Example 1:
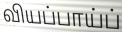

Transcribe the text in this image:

வியப்பாய்ப்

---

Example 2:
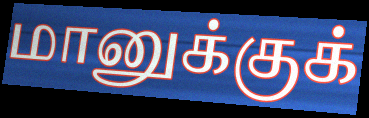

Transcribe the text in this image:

மானுக்குக்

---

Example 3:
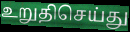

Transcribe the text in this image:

உறுதிசெய்து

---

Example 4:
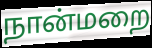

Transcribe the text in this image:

நான்மறை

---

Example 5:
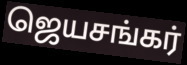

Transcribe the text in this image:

ஜெயசங்கர்